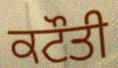
ਕਟੌਤੀ